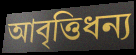
আবৃত্তিধন্য